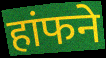
हांफने